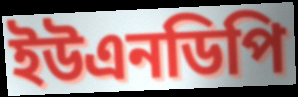
ইউএনডিপি